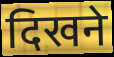
दिखने